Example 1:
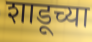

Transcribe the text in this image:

शाडूच्या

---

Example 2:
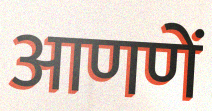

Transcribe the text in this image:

आणणें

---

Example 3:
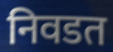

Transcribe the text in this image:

निवडत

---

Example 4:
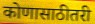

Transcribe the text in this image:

कोणासाठीतरी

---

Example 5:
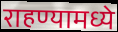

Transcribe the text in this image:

राहण्यामध्ये